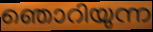
ഞൊറിയുന്ന